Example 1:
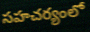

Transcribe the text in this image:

సహచర్యంలో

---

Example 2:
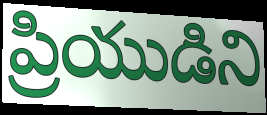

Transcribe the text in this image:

ప్రియుడిని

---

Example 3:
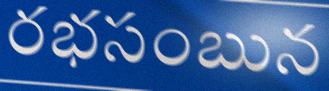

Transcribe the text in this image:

రభసంబున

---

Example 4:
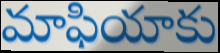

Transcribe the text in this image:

మాఫియాకు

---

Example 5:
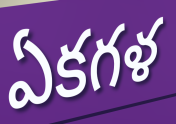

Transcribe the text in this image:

ఏకగళ